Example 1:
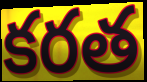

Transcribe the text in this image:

కరత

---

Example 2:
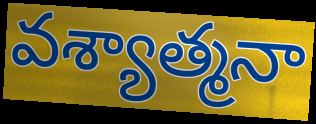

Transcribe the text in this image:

వశ్యాత్మనా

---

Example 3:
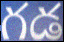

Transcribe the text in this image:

గడ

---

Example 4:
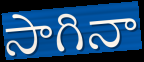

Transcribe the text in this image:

సాగినా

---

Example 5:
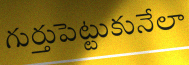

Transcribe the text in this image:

గుర్తుపెట్టుకునేలా